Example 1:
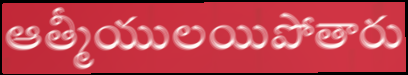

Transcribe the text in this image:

ఆత్మీయులయిపోతారు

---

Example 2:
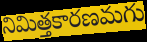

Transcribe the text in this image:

నిమిత్తకారణమగు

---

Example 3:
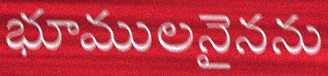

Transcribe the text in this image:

భూములనైనను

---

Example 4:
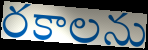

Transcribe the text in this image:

రకాలను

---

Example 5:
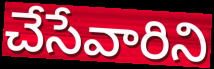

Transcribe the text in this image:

చేసేవారిని